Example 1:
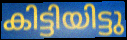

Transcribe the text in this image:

കിട്ടിയിട്ടു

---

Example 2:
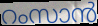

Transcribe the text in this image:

റംസാൻ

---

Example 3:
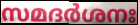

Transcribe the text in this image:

സമദർശനഃ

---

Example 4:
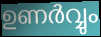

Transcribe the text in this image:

ഉണർവ്വും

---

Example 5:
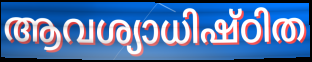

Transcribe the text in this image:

ആവശ്യാധിഷ്ഠിത